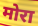
मोरा